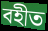
বহীত